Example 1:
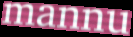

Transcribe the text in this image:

mannu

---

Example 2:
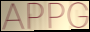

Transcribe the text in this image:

APPG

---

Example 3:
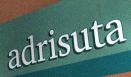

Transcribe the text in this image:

adrisuta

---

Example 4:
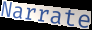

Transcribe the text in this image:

Narrate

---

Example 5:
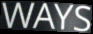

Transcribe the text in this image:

WAYS